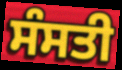
ਸੰਸਤੀ